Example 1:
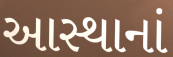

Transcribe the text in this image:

આસ્થાનાં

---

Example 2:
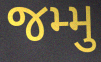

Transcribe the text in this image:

જમ્મુ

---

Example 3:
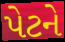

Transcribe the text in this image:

પેટને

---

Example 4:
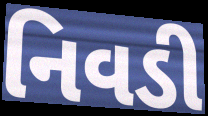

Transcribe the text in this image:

નિવડી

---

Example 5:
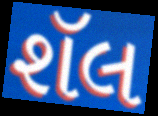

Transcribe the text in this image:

શૅલ